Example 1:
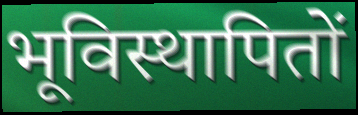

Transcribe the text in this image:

भूविस्थापितों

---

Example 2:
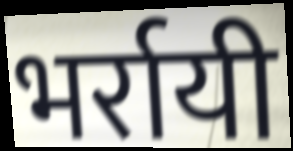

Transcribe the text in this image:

भर्रायी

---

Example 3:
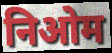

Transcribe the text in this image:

निओम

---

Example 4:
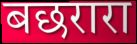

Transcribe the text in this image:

बछरारा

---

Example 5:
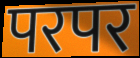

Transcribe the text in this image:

परपर